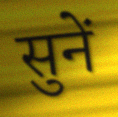
सुनें